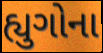
હ્યુગોના